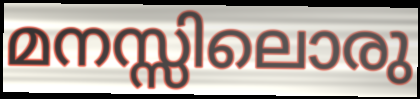
മനസ്സിലൊരു